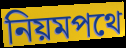
নিয়মপথে